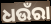
ଧଉଁରା